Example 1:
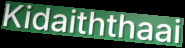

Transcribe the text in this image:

Kidaiththaai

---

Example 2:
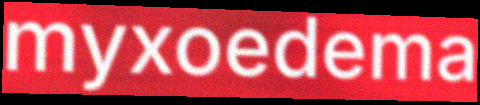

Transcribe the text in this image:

myxoedema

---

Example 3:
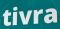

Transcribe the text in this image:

tivra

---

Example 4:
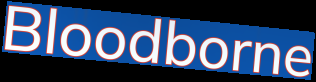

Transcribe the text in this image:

Bloodborne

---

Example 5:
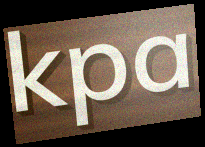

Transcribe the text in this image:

kpa